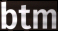
btm